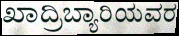
ಖಾದ್ರಿಬ್ಯಾರಿಯವರ